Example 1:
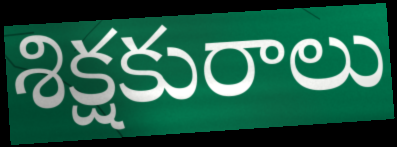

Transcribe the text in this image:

శిక్షకురాలు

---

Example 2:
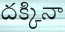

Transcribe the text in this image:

దక్కినా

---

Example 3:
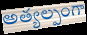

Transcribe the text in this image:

అత్యల్పంగా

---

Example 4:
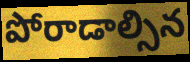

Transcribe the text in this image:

పోరాడాల్సిన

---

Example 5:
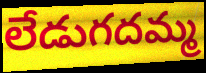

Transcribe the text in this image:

లేడుగదమ్మ